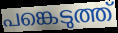
പങ്കെടുത്ത്